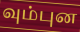
வும்புன